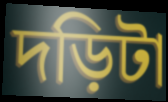
দড়িটা